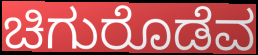
ಚಿಗುರೊಡೆವ